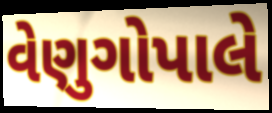
વેણુગોપાલે